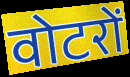
वोटरों